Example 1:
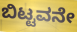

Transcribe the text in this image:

ಬಿಟ್ಟವನೇ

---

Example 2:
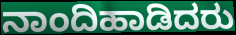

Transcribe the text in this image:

ನಾಂದಿಹಾಡಿದರು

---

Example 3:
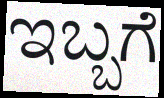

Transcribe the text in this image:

ಇಬ್ಬಗೆ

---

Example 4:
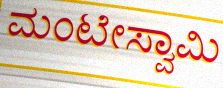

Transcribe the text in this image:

ಮಂಟೇಸ್ವಾಮಿ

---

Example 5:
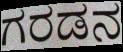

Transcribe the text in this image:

ಗರಡನ